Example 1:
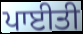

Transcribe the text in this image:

ਪਾਈਤੀ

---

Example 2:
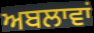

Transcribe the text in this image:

ਅਬਲਾਵਾਂ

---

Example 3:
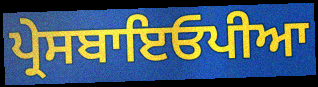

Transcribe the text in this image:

ਪ੍ਰੇਸਬਾਇਓਪੀਆ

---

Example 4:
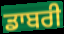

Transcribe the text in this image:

ਡਾਬਰੀ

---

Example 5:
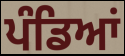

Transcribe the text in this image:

ਪੰਡਿਆਂ